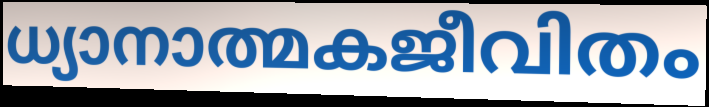
ധ്യാനാത്മകജീവിതം